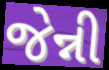
જેન્ની